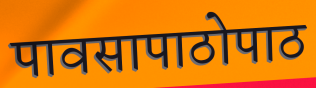
पावसापाठोपाठ